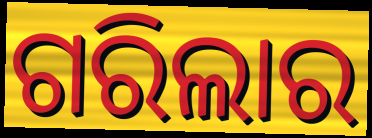
ଗରିଲାର